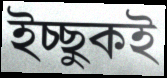
ইচ্ছুকই